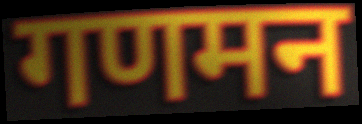
गणमन